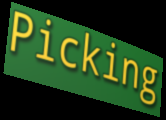
Picking